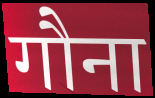
गौना